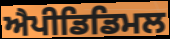
ਐਪੀਡਿਡਿਮਲ